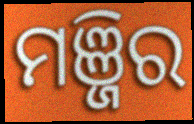
ମଞ୍ଜିର